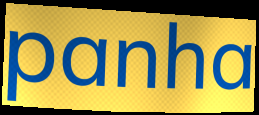
panha